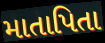
માતાપિતા